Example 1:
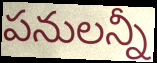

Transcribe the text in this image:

పనులన్నీ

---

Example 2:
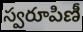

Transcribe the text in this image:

స్వరూపిణీ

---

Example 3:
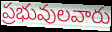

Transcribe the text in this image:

ప్రభువులవారు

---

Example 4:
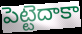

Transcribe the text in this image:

పెట్టెదాకా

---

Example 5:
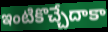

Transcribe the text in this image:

ఇంటికొచ్చేదాకా